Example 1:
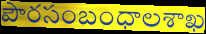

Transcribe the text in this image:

పౌరసంబంధాలశాఖ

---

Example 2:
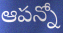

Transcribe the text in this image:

ఆపన్నో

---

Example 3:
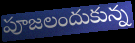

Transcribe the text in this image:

పూజలందుకున్న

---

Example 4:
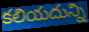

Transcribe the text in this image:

కలియదున్ని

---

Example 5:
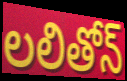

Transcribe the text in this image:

లలితోన్